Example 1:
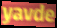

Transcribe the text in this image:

yavde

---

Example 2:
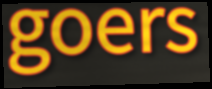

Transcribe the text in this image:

goers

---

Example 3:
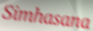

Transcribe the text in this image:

Simhasana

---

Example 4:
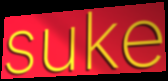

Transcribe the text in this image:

suke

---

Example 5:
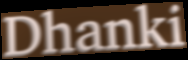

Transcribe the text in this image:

Dhanki